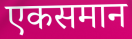
एकसमान